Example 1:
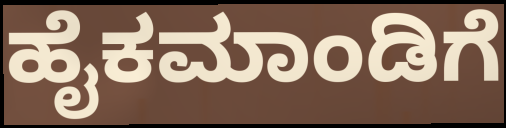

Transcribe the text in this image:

ಹೈಕಮಾಂಡಿಗೆ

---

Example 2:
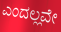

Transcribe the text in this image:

ಎಂದಲ್ಲವೇ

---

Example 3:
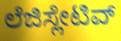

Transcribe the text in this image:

ಲೆಜಿಸ್ಲೇಟಿವ್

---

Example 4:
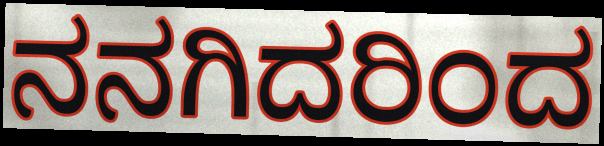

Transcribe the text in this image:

ನನಗಿದರಿಂದ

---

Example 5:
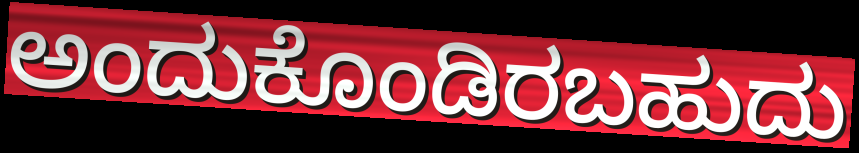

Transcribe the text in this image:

ಅಂದುಕೊಂಡಿರಬಹುದು